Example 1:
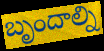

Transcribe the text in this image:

బృందాల్ని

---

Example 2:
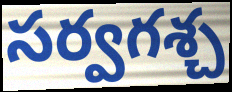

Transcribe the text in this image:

సర్వగశ్చ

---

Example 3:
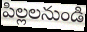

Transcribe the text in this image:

పిల్లలనుండి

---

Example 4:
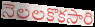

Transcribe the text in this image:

నెలలకొకసారి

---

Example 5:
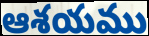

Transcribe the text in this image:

ఆశయము